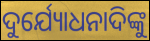
ଦୁର୍ଯ୍ୟୋଧନାଦିଙ୍କୁ